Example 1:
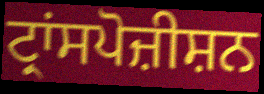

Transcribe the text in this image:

ਟ੍ਰਾਂਸਪੋਜ਼ੀਸ਼ਨ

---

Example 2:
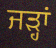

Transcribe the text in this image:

ਜੜ੍ਹਾਂ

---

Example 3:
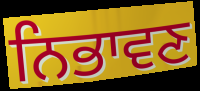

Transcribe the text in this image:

ਨਿਭਾਵਣ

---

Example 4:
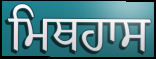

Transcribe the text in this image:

ਮਿਥਹਾਸ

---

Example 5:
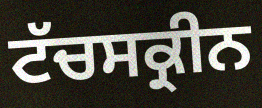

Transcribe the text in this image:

ਟੱਚਸਕ੍ਰੀਨ